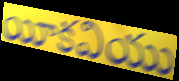
యీకవియు